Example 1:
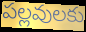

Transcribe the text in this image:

పల్లవులకు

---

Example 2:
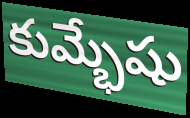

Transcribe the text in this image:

కుమ్భేషు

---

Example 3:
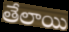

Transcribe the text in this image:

తేలాయి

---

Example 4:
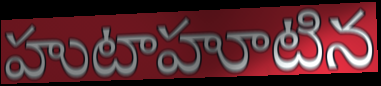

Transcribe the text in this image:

హుటాహూటిన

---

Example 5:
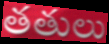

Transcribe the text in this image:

తతులు